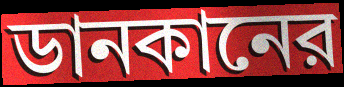
ডানকানের